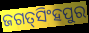
ଜଗତ୍‌ସିଂହପୁର